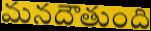
మనదౌతుంది